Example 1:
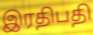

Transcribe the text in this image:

இரதிபதி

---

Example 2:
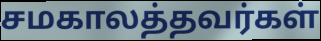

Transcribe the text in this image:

சமகாலத்தவர்கள்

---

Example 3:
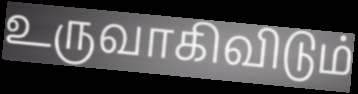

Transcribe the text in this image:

உருவாகிவிடும்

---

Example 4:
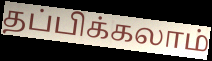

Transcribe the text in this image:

தப்பிக்கலாம்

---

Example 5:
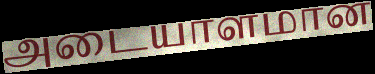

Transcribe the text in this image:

அடையாளமான